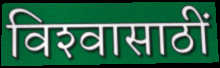
विश्वासाठीं